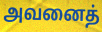
அவனைத்